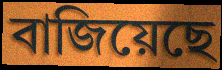
বাজিয়েছে